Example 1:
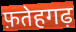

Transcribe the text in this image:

फ़तेहगढ़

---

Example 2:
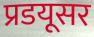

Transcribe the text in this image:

प्रडयूसर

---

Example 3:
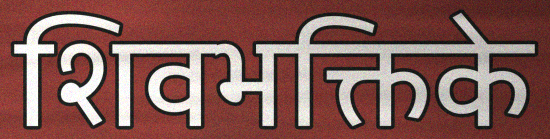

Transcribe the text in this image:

शिवभक्तिके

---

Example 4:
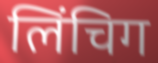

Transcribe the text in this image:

लिंचिग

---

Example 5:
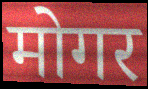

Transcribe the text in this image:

मोगर